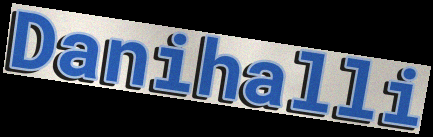
Danihalli